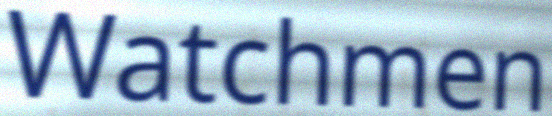
Watchmen